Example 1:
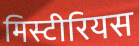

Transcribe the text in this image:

मिस्टीरियस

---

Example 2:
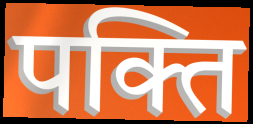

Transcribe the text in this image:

पक्ति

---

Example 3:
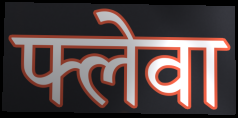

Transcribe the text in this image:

फ्लेवा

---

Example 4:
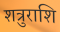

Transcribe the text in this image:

शत्रुराशि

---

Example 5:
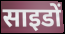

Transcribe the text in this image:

साइडों